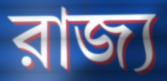
রাজ্য